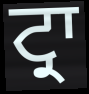
ਟ੍ਰਾ